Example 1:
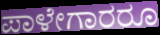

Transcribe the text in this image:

ಪಾಳೇಗಾರರೂ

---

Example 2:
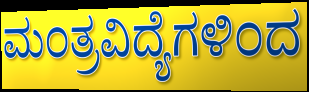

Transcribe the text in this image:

ಮಂತ್ರವಿದ್ಯೆಗಳಿಂದ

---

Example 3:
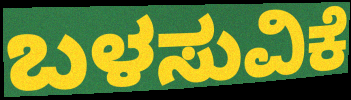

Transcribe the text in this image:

ಬಳಸುವಿಕೆ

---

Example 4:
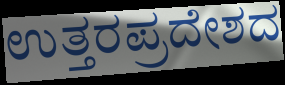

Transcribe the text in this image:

ಉತ್ತರಪ್ರದೇಶದ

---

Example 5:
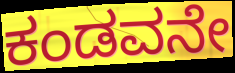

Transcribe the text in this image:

ಕಂಡವನೇ